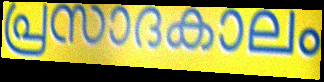
പ്രസാദകാലം